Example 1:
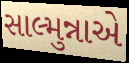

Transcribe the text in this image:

સાલ્મુન્નાએ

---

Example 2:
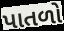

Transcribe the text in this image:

પાતળો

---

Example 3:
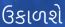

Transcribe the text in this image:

ઉકાળશે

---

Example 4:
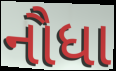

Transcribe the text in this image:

નૌધા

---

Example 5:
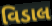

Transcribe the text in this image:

વિડાલ